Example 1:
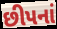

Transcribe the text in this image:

છીપનાં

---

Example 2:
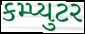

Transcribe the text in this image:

કમ્પ્યુટર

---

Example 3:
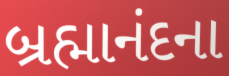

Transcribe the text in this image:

બ્રહ્માનંદના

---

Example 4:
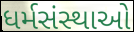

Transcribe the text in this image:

ધર્મસંસ્થાઓ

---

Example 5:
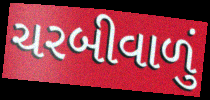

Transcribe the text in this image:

ચરબીવાળું